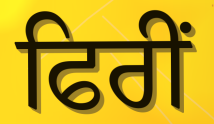
ਫਿਰੀਂ